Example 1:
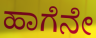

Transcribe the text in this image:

ಹಾಗೆನೇ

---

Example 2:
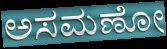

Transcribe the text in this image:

ಅಸಮಣೋ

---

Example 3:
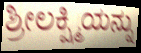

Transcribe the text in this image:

ಶ್ರೀಲಕ್ಷ್ಮಿಯನ್ನು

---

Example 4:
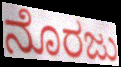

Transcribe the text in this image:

ನೊರಜು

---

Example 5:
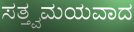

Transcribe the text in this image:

ಸತ್ತ್ವಮಯವಾದ